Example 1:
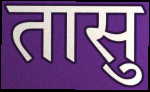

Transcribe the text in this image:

तासु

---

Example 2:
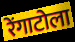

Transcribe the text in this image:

रेंगाटोला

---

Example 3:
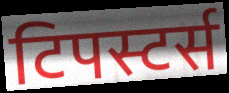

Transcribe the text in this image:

टिपस्टर्स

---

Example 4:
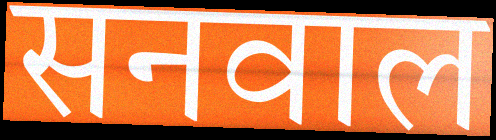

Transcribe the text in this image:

सनवाल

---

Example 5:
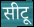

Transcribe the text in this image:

सीटू